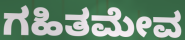
ಗಹಿತಮೇವ